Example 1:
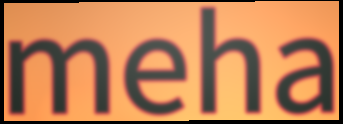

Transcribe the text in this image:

meha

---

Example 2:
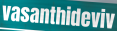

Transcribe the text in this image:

vasanthideviv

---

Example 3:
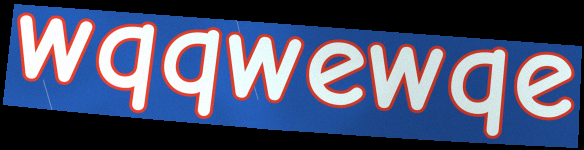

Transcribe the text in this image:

wqqwewqe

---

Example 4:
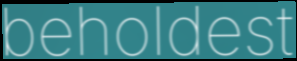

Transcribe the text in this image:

beholdest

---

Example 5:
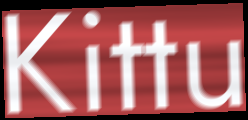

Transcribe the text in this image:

Kittu